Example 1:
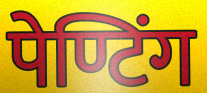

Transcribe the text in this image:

पेण्टिंग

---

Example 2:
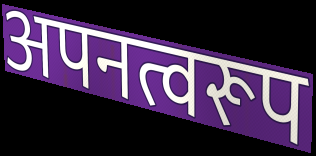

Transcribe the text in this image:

अपनत्वरूप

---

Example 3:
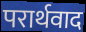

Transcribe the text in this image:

परार्थवाद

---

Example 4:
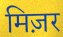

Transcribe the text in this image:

मिज़र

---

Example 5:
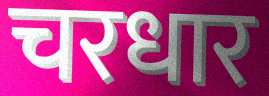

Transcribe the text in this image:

चरधार